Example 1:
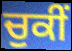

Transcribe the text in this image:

ਚੁਕੀਂ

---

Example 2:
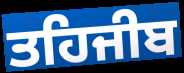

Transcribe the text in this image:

ਤਹਿਜੀਬ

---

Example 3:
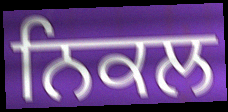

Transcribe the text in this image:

ਨਿਕਲ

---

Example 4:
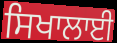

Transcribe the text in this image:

ਸਿਖਾਲਾਈ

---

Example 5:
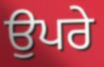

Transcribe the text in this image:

ਉਪਰੇ